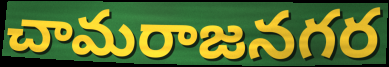
చామరాజనగర